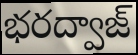
భరద్వాజ్